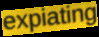
expiating